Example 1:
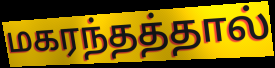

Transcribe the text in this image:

மகரந்தத்தால்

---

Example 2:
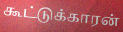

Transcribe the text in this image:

கூட்டுக்காரன்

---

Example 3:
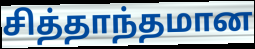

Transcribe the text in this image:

சித்தாந்தமான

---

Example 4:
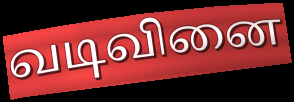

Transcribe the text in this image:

வடிவினை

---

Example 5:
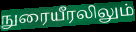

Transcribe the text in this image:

நுரையீரலிலும்